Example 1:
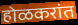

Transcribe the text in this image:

होळकरांत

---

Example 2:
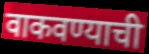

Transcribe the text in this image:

वाकवण्याची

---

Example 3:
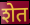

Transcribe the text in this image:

शेत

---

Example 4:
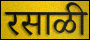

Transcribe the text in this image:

रसाळी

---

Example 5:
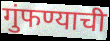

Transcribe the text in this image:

गुंफण्याची